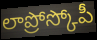
లాప్రోస్కోపీ